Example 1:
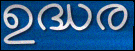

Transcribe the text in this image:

ഉദ്ധര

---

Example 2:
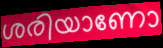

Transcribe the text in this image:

ശരിയാണോ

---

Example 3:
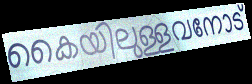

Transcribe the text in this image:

കൈയിലുള്ളവനോട്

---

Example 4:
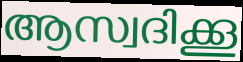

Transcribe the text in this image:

ആസ്വദിക്കൂ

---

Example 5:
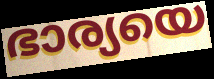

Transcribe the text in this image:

ഭാര്യയെ